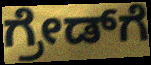
ಗ್ರೇಡ್‌ಗೆ